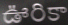
ఊరికా